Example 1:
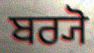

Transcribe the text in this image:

ਬਰ੍ਯੋ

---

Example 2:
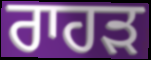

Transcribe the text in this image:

ਰਾਹੜ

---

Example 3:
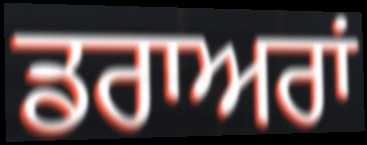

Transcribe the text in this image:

ਡਰਾਅਰਾਂ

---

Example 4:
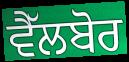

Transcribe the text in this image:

ਵੈੱਲਬੋਰ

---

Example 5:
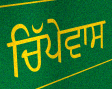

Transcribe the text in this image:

ਚਿੱਪੇਵਾਸ